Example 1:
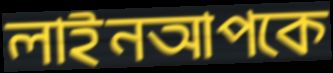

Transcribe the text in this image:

লাইনআপকে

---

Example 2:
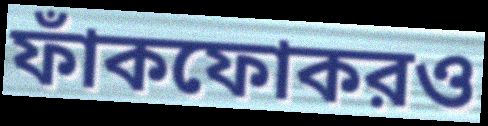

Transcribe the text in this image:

ফাঁকফোকরও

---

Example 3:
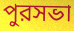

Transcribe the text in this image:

পুরসভা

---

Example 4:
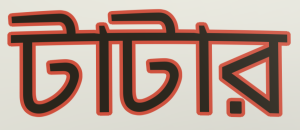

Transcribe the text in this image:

টাটার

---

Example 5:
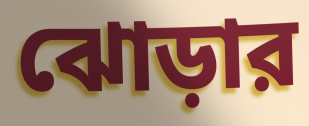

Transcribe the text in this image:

ঝোড়ার